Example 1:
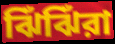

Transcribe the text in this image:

ঝিঁঝিঁরা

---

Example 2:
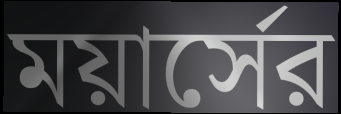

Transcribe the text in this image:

ময়ার্সের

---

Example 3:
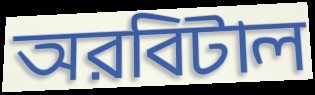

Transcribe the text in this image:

অরবিটাল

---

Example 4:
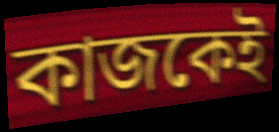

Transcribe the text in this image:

কাজকেই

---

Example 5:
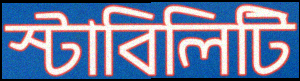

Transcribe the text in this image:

স্টাবিলিটি